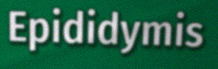
Epididymis